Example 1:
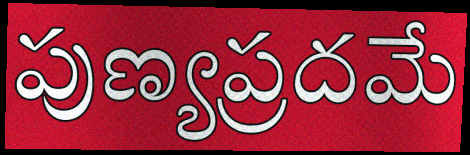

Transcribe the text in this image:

పుణ్యప్రదమే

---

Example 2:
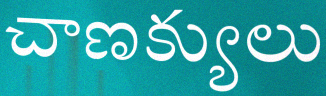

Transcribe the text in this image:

చాణక్యులు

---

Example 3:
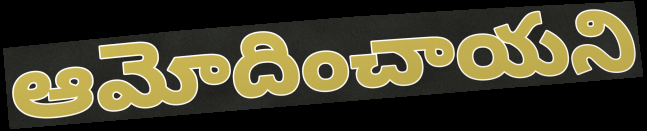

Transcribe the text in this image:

ఆమోదించాయని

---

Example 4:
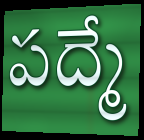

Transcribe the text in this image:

పద్మే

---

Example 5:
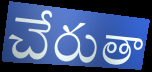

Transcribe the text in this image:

చేరుతా